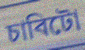
চাবিটো